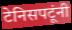
टेनिसपटूंनी